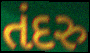
તંદરુ